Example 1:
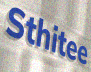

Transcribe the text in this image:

Sthitee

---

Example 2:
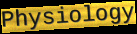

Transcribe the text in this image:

Physiology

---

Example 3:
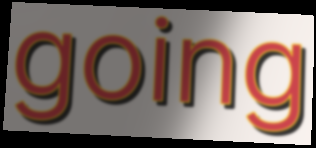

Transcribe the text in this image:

going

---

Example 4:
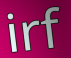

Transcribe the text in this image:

irf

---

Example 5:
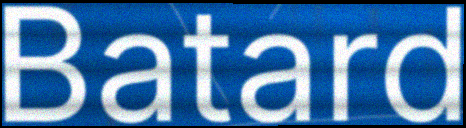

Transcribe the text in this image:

Batard